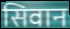
सिवान